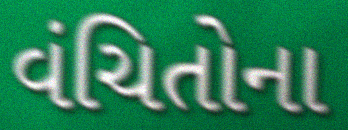
વંચિતોના